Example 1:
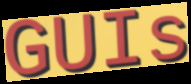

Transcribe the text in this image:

GUIs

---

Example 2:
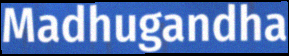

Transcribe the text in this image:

Madhugandha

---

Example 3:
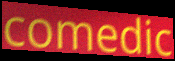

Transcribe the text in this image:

comedic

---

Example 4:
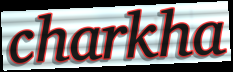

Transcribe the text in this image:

charkha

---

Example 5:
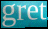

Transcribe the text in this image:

gret